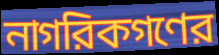
নাগরিকগণের